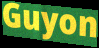
Guyon